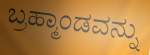
ಬ್ರಹ್ಮಾಂಡವನ್ನು